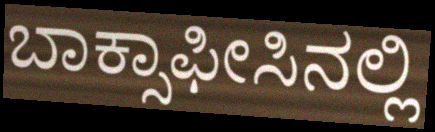
ಬಾಕ್ಸಾಫೀಸಿನಲ್ಲಿ